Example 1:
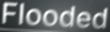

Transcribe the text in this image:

Flooded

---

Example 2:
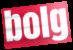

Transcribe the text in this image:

bolg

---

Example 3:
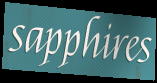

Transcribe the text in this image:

sapphires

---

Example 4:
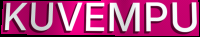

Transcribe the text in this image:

KUVEMPU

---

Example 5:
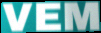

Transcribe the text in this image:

VEM